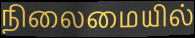
நிலைமையில்